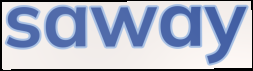
saway